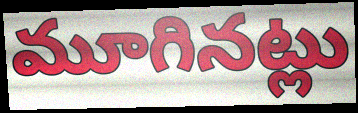
మూగినట్లు